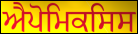
ਐਪੋਮਿਕਸਿਸ